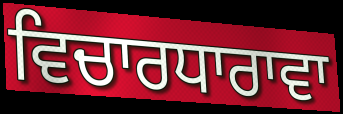
ਵਿਚਾਰਧਾਰਾਵਾ